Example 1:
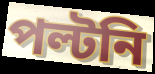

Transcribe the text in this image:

পল্টনি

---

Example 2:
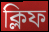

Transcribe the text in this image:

ক্লিফ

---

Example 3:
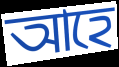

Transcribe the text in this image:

আহে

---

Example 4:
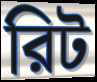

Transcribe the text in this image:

রিট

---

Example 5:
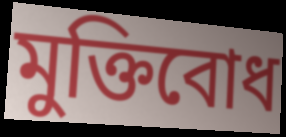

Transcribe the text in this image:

মুক্তিবোধ